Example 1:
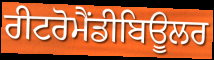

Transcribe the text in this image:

ਰੀਟਰੋਮੈਂਡੀਬਿਊਲਰ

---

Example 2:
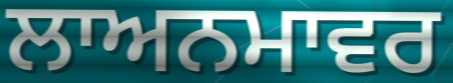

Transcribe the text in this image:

ਲਾਅਨਮਾਵਰ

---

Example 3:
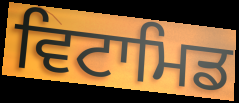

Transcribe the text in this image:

ਵਿਟਾਮਿਡ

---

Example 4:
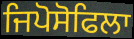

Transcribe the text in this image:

ਜਿਪੋਸੋਫਿਲਾ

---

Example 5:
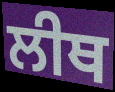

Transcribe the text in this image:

ਲੀਥ